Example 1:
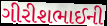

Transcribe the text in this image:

ગીરીશભાઈની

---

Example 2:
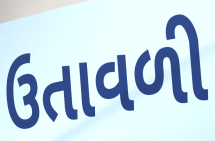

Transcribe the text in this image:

ઉતાવળી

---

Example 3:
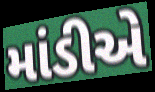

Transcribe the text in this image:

માંડીએ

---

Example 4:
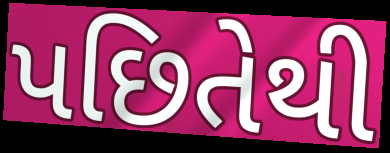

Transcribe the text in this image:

પછિતેથી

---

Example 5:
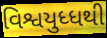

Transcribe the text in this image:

વિશ્વયુધ્ધથી